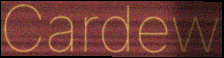
Cardew